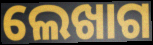
ଲେଖାଗ